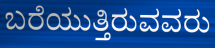
ಬರೆಯುತ್ತಿರುವವರು